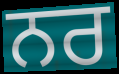
ਨਰ